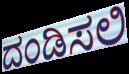
ದಂಡಿಸಲಿ